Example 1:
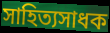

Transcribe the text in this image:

সাহিত্যসাধক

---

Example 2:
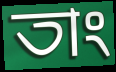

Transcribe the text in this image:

তাং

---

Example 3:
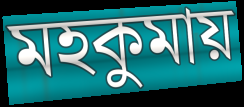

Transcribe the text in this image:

মহকুমায়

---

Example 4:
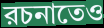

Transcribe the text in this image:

রচনাতেও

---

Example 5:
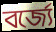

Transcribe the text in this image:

বর্জ্যে